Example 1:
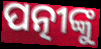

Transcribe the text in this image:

ପତ୍ନୀଙ୍କୁ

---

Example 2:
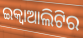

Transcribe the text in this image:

ଇକ୍ୱାଆଲିଟିର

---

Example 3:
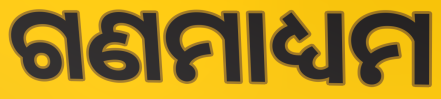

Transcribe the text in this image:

ଗଣମାଧ୍ୟମ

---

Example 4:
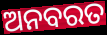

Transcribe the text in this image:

ଅନବରତ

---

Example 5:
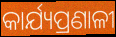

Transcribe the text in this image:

କାର୍ଯ୍ୟପ୍ରଣାଳୀ